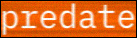
predate